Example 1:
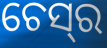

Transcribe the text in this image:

ଚେସ୍‌ର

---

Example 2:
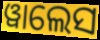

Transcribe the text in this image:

ୱାଲେସ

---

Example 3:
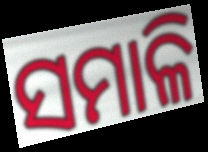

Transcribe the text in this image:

ସମାଳି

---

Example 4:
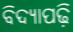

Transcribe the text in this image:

ବିଦ୍ୟାପଢ଼ି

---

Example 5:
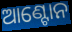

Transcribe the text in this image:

ଆଣ୍ଟୋନ